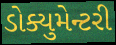
ડોક્યુમેન્ટરી